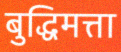
बुद्धिमत्ता